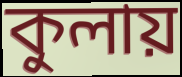
কুলায়